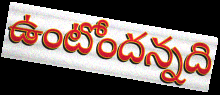
ఉంటోందన్నది